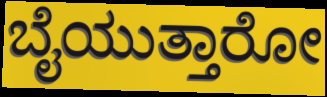
ಬೈಯುತ್ತಾರೋ